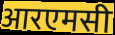
आरएमसी